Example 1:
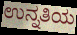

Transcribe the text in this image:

ಉನ್ನತಿಯ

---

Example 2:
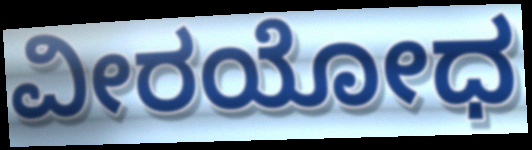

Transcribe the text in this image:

ವೀರಯೋಧ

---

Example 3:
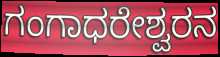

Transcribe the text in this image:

ಗಂಗಾಧರೇಶ್ವರನ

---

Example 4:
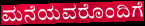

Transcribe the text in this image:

ಮನೆಯವರೊಂದಿಗೆ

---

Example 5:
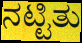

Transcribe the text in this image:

ನಟ್ಟಿತು